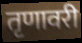
तृणावरी